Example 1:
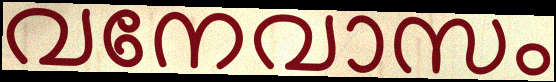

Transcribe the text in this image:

വനേവാസം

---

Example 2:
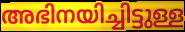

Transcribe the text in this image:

അഭിനയിച്ചിട്ടുള്ള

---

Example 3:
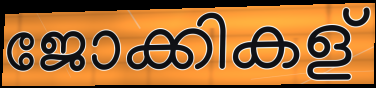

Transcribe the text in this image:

ജോക്കികള്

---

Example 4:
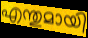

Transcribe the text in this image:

എന്തുമായി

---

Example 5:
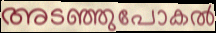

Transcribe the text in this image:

അടഞ്ഞുപോകൽ